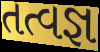
તત્વજ્ઞ